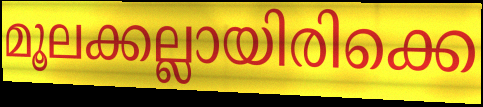
മൂലക്കല്ലായിരിക്കെ